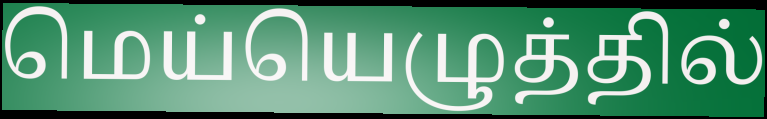
மெய்யெழுத்தில்